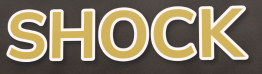
SHOCK